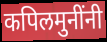
कपिलमुनींनी